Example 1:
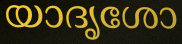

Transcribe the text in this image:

യാദൃശോ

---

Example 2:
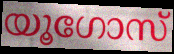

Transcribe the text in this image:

യൂഗോസ്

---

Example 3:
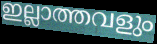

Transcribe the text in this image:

ഇല്ലാത്തവളും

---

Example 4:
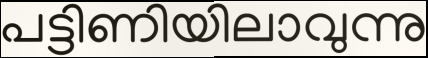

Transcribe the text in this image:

പട്ടിണിയിലാവുന്നു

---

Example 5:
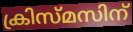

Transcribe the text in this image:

ക്രിസ്മസിന്